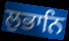
ਲੁਭਾਨਿ